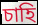
চাহি